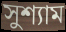
সুশ্যাম